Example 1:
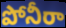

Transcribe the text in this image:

పోనీరా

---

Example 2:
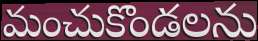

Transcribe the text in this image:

మంచుకొండలను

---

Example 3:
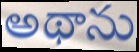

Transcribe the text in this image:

అథాను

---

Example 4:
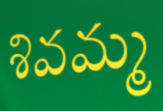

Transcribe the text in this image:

శివమ్మ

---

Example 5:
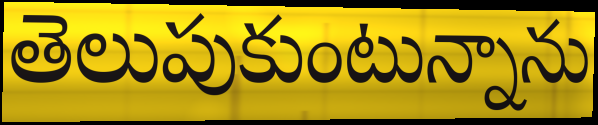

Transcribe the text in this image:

తెలుపుకుంటున్నాను